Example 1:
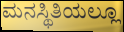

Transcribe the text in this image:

ಮನಸ್ಥಿತಿಯಲ್ಲೂ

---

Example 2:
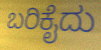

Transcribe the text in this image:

ಬರಿಕೈದು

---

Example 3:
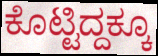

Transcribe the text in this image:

ಕೊಟ್ಟಿದ್ದಕ್ಕೂ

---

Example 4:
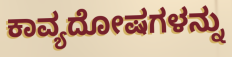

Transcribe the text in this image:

ಕಾವ್ಯದೋಷಗಳನ್ನು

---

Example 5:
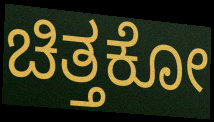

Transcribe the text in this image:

ಚಿತ್ತಕೋ